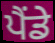
ਪੈਂਡੇ